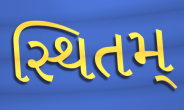
સ્થિતમ્